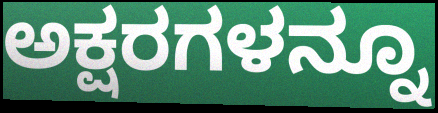
ಅಕ್ಷರಗಳನ್ನೂ